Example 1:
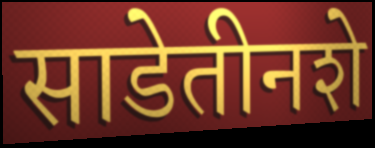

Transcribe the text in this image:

साडेतीनशे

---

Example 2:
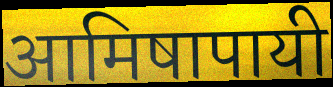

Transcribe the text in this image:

आमिषापायी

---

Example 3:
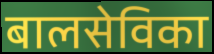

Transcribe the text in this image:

बालसेविका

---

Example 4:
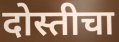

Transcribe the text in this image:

दोस्तीचा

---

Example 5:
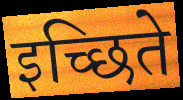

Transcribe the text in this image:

इच्छिते